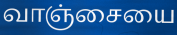
வாஞ்சையை